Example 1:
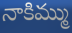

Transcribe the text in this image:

నాకిమ్ము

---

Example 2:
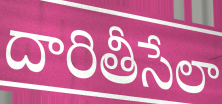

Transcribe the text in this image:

దారితీసేలా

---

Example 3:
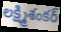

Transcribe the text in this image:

లక్ష్మిశంకర్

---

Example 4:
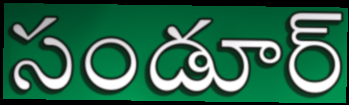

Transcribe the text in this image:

సండూర్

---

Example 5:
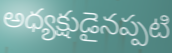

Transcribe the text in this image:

అధ్యక్షుడైనప్పటి